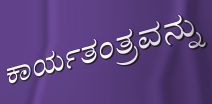
ಕಾರ್ಯತಂತ್ರವನ್ನು